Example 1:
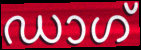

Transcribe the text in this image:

ഡാഗ്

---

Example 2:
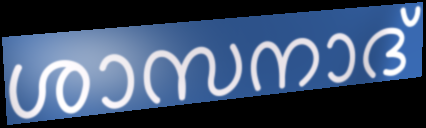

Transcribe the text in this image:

ശാസനാദ്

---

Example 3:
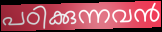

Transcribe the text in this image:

പഠിക്കുന്നവൻ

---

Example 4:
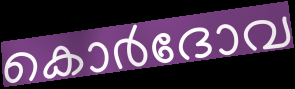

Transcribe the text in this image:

കൊർദോവ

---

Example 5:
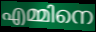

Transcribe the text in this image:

എമ്മിനെ